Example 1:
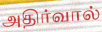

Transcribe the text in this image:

அதிர்வால்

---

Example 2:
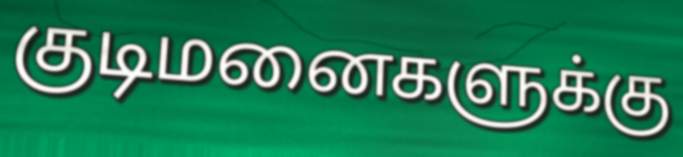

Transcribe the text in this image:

குடிமனைகளுக்கு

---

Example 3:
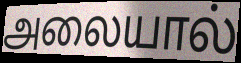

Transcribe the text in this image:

அலையால்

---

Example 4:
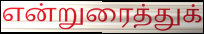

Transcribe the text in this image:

என்றுரைத்துக்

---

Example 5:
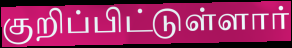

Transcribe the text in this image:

குறிப்பிட்டுள்ளார்